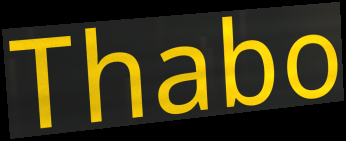
Thabo